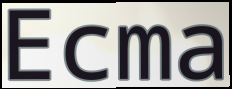
Ecma